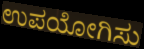
ಉಪಯೋಗಿಸು